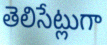
తెలిసేట్లుగా